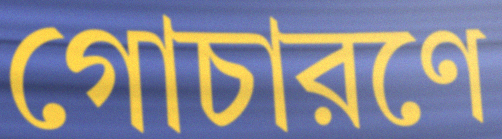
গোচারণে